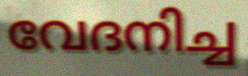
വേദനിച്ച